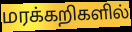
மரக்கறிகளில்